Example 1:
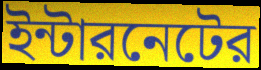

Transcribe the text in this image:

ইন্টারনেটের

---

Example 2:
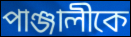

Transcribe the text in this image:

পাঞ্জালীকে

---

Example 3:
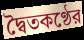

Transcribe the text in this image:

দ্বৈতকণ্ঠের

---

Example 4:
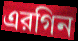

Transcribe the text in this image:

এরগিন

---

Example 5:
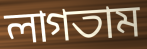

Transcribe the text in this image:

লাগতাম